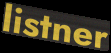
listner